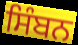
ਸਿੰਬਨ